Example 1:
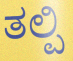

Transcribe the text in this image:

ತಲ್ಪಿ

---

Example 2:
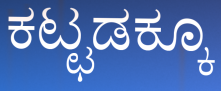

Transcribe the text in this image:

ಕಟ್ಟಡಕ್ಕೂ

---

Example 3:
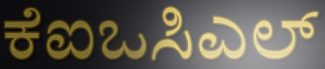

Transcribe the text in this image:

ಕೆಐಒಸಿಎಲ್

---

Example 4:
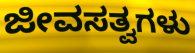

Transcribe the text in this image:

ಜೀವಸತ್ವಗಳು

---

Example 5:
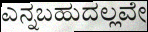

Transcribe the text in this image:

ಎನ್ನಬಹುದಲ್ಲವೇ